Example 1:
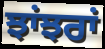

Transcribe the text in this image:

ਝਾਂਝਰਾਂ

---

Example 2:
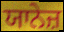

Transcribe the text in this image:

ਯਾਨੇਜ਼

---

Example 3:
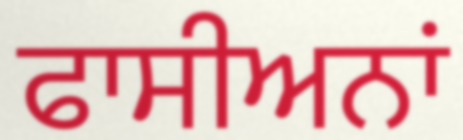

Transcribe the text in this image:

ਫਾਸੀਅਨਾਂ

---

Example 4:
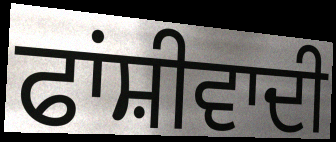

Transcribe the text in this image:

ਫਾਂਸ਼ੀਵਾਦੀ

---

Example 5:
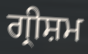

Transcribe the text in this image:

ਗ੍ਰੀਸ਼ਮ